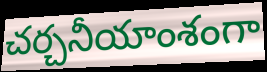
చర్చనీయాంశంగా